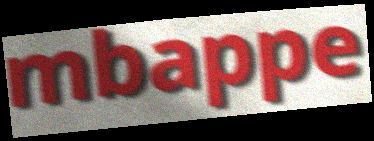
mbappe